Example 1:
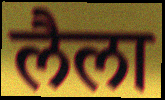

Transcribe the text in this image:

लैला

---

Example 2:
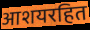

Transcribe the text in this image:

आशयरहित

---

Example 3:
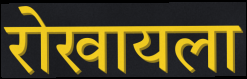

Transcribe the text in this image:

रोखायला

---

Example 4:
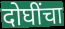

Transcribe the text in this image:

दोघींचा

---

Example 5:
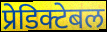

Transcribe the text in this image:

प्रेडिक्टेबल